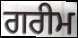
ਗਰੀਮ